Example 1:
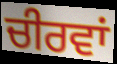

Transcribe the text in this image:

ਚੀਰਵਾਂ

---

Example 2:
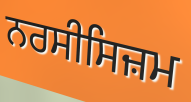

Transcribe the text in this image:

ਨਰਸੀਸਿਜ਼ਮ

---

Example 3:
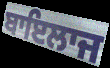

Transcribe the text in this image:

ਬਾਇਲਾਜ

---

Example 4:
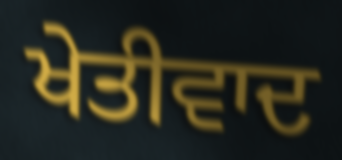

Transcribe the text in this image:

ਖੇਤੀਵਾਦ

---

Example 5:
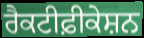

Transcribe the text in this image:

ਰੈਕਟੀਫ਼ੀਕੇਸ਼ਨ